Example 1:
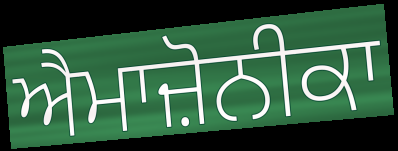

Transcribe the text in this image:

ਐਮਾਜ਼ੋਨੀਕਾ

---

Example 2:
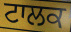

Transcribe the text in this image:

ਟਾਲਕ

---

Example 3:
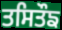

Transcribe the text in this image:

ਤਸਿਤੌਙ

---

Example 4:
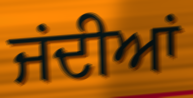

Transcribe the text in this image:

ਜਂਦੀਆਂ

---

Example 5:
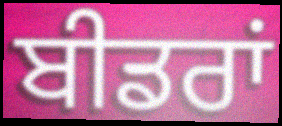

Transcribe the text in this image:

ਬੀਡਰਾਂ